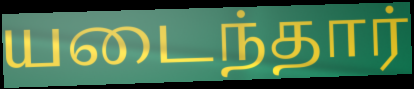
யடைந்தார்